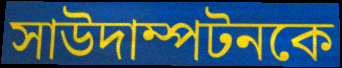
সাউদাম্পটনকে